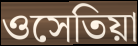
ওসেতিয়া